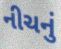
નીચનું